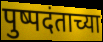
पुष्पदंताच्या